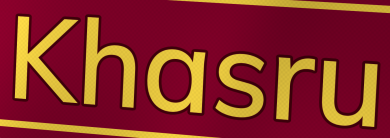
Khasru